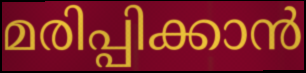
മരിപ്പിക്കാൻ